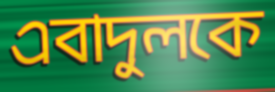
এবাদুলকে